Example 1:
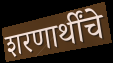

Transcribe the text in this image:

शरणार्थींचे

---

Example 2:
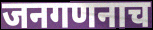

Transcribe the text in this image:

जनगणनाच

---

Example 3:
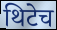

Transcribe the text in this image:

थिटेच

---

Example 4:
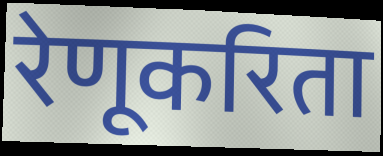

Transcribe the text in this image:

रेणूकरिता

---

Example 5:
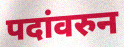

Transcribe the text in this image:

पदांवरुन